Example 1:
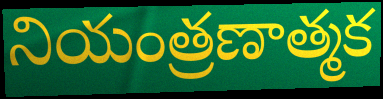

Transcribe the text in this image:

నియంత్రణాత్మక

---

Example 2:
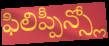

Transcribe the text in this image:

ఫిలిప్పీన్స్లో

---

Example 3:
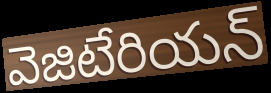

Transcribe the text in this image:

వెజిటేరియన్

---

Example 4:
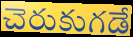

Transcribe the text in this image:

చెరుకుగడే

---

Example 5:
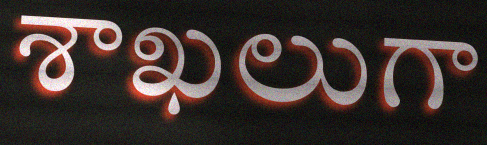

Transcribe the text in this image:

శాఖలుగా